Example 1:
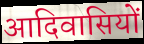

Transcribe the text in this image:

आदिवासियों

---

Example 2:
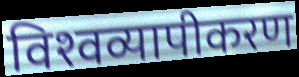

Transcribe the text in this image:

विश्वव्यापीकरण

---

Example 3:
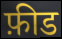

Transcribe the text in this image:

फ़ीड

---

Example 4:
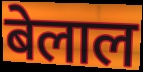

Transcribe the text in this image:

बेलाल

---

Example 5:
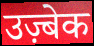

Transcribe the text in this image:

उज़्बेक